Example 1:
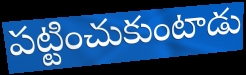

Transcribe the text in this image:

పట్టించుకుంటాడు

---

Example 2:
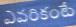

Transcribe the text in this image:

ఎవరికంటే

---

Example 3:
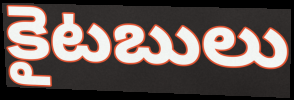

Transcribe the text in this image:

కైటబులు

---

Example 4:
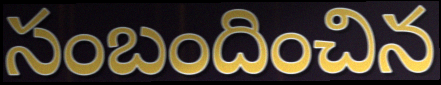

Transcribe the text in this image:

సంబందించిన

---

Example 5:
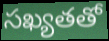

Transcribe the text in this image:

సఖ్యతతో